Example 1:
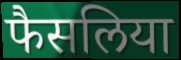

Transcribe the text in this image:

फैसलिया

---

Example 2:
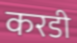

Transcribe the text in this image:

करडी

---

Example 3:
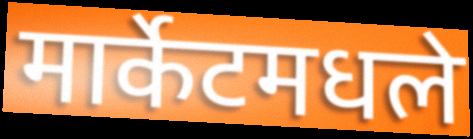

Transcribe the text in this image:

मार्केटमधले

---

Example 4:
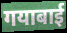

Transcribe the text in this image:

गयाबाई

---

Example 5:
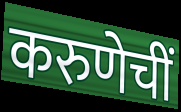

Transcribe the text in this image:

करुणेचीं